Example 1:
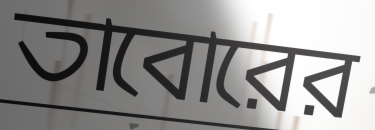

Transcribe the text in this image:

তাবোরের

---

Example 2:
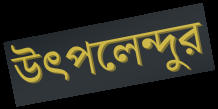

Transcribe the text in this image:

উৎপলেন্দুর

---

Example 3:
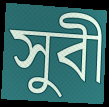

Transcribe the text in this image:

সুবী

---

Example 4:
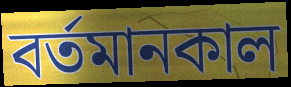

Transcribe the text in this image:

বর্তমানকাল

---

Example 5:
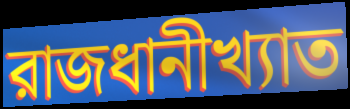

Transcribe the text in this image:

রাজধানীখ্যাত